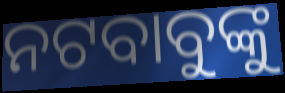
ନଟବାବୁଙ୍କୁ